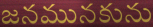
జనమునకును